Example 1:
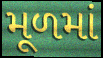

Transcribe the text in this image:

મૂળમાં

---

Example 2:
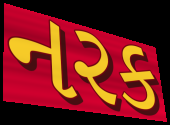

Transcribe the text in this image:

નરક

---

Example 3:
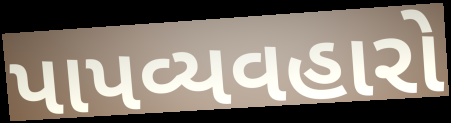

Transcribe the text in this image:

પાપવ્યવહારો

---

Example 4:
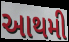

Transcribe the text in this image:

આથમી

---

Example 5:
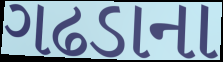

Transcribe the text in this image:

ગઢડાના